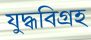
যুদ্ধবিগ্রহ